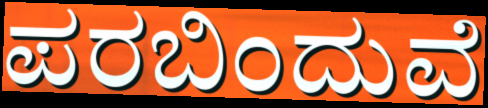
ಪರಬಿಂದುವೆ